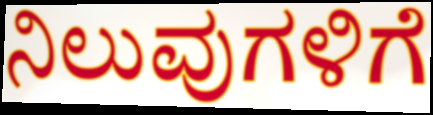
ನಿಲುವುಗಳಿಗೆ